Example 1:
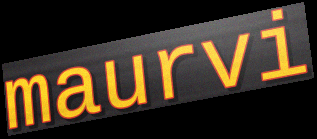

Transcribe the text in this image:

maurvi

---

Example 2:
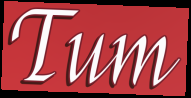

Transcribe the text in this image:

Tum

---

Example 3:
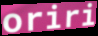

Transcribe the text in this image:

oriri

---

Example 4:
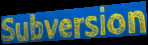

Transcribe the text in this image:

Subversion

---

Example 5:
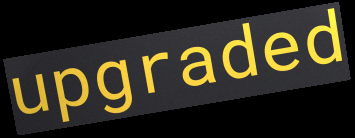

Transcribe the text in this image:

upgraded